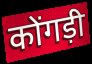
कोंगड़ी